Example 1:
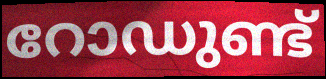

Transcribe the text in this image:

റോഡുണ്ട്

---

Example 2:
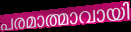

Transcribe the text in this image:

പരമാത്മാവായി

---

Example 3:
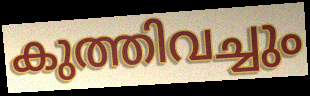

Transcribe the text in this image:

കുത്തിവച്ചും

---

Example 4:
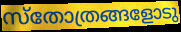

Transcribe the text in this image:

സ്തോത്രങ്ങളോടു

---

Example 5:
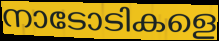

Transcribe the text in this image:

നാടോടികളെ